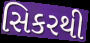
સિકરથી